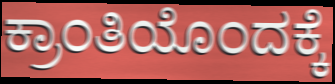
ಕ್ರಾಂತಿಯೊಂದಕ್ಕೆ